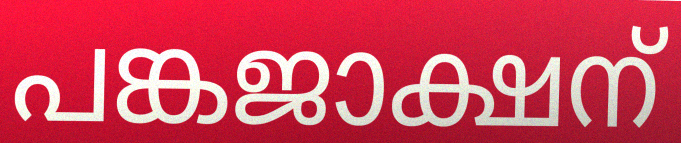
പങ്കജാക്ഷന്